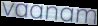
vaanam